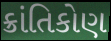
ક્રાંતિકોણ